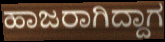
ಹಾಜರಾಗಿದ್ದಾಗ